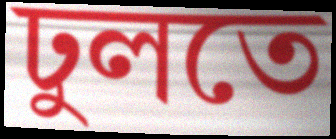
ঢুলতে